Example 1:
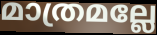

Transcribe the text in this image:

മാത്രമല്ലേ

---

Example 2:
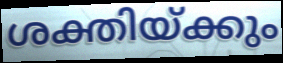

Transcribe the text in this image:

ശക്തിയ്ക്കും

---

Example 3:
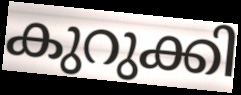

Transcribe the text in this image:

കുറുക്കി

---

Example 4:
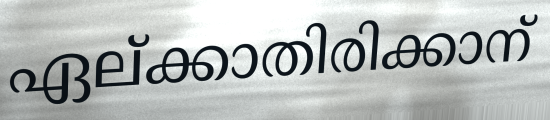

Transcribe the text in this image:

ഏല്ക്കാതിരിക്കാന്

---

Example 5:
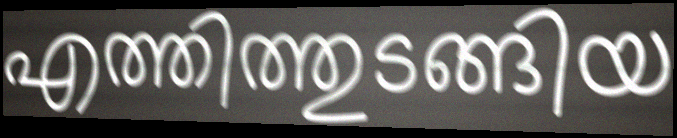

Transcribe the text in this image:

എത്തിത്തുടങ്ങിയ